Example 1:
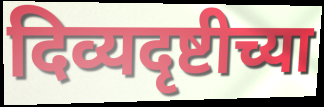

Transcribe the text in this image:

दिव्यदृष्टीच्या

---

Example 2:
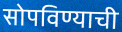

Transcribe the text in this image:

सोपविण्याची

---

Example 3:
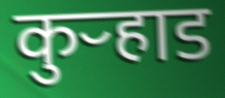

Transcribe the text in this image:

कुऱ्हाड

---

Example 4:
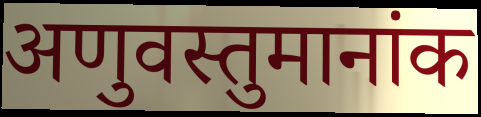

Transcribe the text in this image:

अणुवस्तुमानांक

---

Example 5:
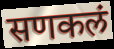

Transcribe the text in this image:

सणकलं